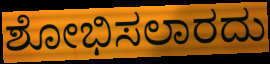
ಶೋಭಿಸಲಾರದು